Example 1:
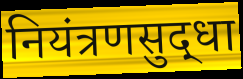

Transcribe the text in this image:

नियंत्रणसुद्धा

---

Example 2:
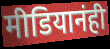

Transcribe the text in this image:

मीडियानंही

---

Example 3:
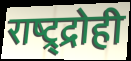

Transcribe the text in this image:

राष्ट्र्द्रोही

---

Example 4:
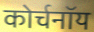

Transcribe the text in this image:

कोर्चनॉय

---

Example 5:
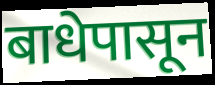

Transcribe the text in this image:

बाधेपासून